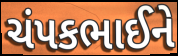
ચંપકભાઈને